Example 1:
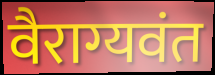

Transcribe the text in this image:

वैराग्यवंत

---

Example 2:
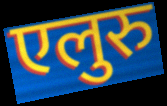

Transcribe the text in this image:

एलुरु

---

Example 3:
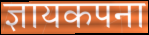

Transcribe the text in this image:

ज्ञायकपना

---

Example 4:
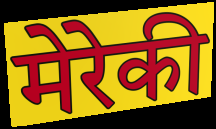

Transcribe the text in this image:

मेरेकी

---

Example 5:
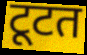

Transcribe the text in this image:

टूटत